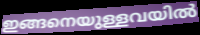
ഇങ്ങനെയുള്ളവയിൽ